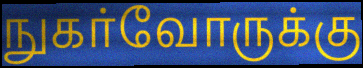
நுகர்வோருக்கு